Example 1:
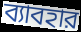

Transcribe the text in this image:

ব্যাবহার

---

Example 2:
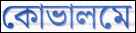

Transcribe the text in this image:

কোভালমে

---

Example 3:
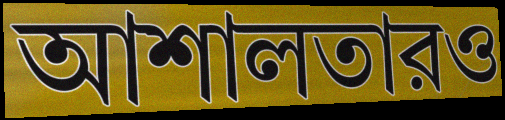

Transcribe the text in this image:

আশালতারও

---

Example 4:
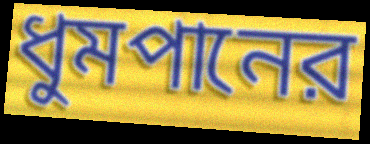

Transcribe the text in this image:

ধুমপানের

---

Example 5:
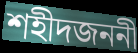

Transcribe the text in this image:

শহীদজননী